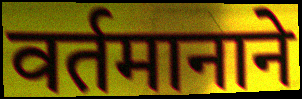
वर्तमानाने